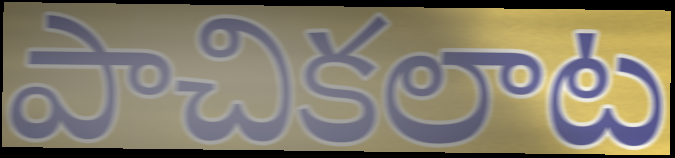
పాచికలాట